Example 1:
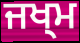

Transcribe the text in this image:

ਜਖ੍ਮ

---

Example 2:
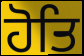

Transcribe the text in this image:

ਹੋਤਿ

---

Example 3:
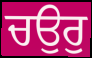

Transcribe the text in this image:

ਚਉਰੁ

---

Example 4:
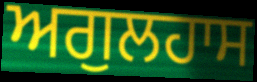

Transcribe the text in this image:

ਅਗੁਲਹਾਸ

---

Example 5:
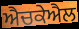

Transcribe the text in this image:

ਐਚਕੇਐਲ